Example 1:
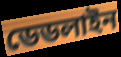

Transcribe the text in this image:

ডেডলাইন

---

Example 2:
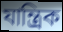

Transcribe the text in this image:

যান্ত্রিক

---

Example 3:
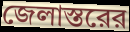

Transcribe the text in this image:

জেলাস্তরের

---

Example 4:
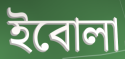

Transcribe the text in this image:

ইবোলা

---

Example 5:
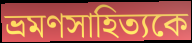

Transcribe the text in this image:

ভ্রমণসাহিত্যকে